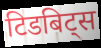
टिडबिट्स